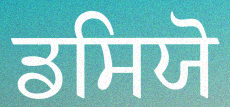
ਡਸਿਯੋ